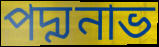
পদ্মনাভ